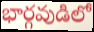
భార్గవుడిలో